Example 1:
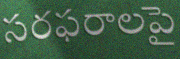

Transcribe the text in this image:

సరఫరాలపై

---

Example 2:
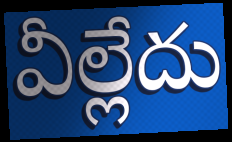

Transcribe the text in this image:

వీల్లేదు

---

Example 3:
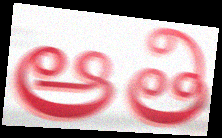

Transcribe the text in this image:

ఆతి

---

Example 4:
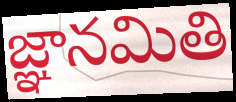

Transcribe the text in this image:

జ్ఞానమితి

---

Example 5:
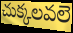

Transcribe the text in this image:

చుక్కలవలె